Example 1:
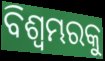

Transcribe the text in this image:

ବିଶ୍ୱମ୍ଭରକୁ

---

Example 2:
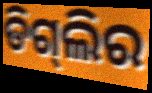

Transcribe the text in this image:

ଡିଗ୍‌ଲିର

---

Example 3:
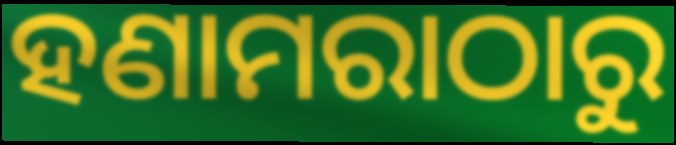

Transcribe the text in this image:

ହଣାମରାଠାରୁ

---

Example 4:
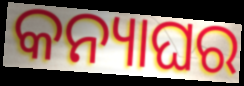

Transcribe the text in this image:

କନ୍ୟାଘର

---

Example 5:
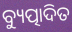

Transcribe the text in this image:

ବ୍ୟୁତ୍ପାଦିତ